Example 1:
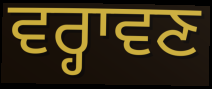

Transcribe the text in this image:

ਵਰ੍ਹਾਵਣ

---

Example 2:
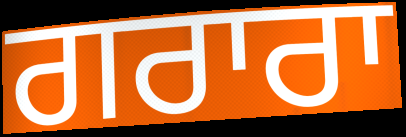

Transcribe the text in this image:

ਗਰਾਰਾ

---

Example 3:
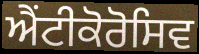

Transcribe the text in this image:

ਐਂਟੀਕੋਰੋਸਿਵ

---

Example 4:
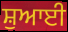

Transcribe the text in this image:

ਸ਼ੁਆਈ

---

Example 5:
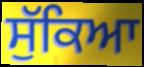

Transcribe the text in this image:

ਸੁੱਕਿਆ